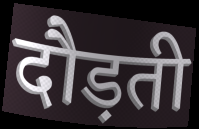
दौड़ती